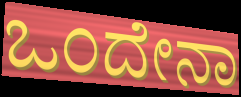
ಒಂದೇನಾ